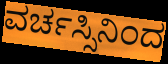
ವರ್ಚಸ್ಸಿನಿಂದ